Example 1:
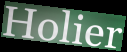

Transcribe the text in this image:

Holier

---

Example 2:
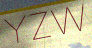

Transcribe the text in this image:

YZW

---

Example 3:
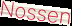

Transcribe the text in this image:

Nossen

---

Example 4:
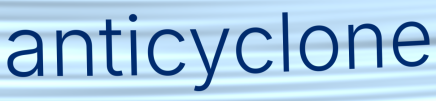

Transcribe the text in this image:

anticyclone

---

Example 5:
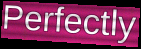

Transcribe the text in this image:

Perfectly